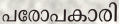
പരോപകാരി